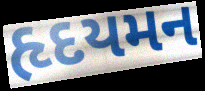
હૃદયમન